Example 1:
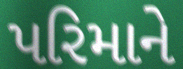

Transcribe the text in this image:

પરિમાને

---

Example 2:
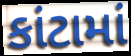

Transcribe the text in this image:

કાંટામાં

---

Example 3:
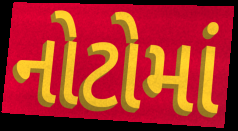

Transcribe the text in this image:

નોટોમાં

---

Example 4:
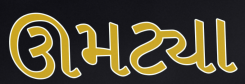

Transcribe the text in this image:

ઊમટ્યા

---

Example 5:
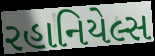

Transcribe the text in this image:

રહાનિયેલ્સ